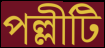
পল্লীটি